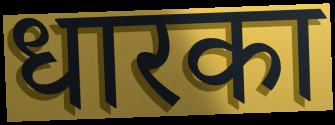
धारका